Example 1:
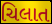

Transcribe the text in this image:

ચિલાત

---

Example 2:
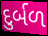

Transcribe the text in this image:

દુર્બળ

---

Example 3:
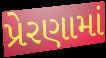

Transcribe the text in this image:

પ્રેરણામાં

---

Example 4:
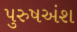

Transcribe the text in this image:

પુરુષઅંશ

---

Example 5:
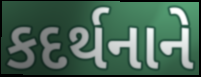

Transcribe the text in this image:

કદર્થનાને